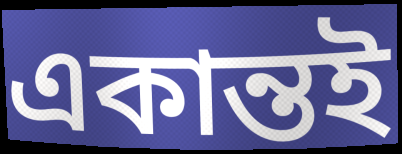
একান্তই